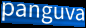
panguva